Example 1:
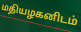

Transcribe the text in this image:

மதியழகனிடம்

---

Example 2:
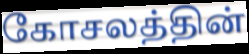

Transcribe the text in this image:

கோசலத்தின்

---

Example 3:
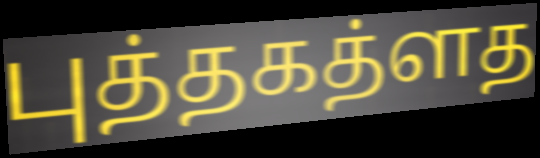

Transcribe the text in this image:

புத்தகத்ளத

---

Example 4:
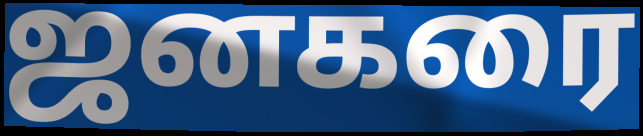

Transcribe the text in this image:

ஜனகரை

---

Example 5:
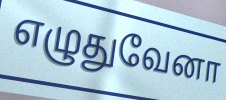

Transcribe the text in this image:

எழுதுவேனா